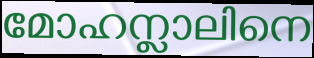
മോഹന്ലാലിനെ